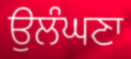
ਉਲੰਘਣਾ